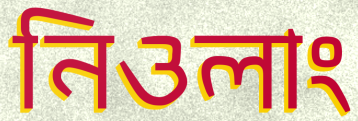
নিওলাং